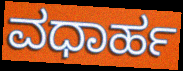
ವಧಾರ್ಹ